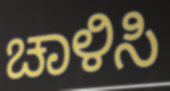
ಚಾಳಿಸಿ